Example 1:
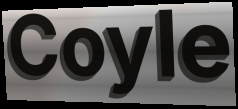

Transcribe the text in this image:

Coyle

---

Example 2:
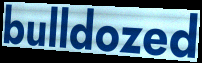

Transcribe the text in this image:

bulldozed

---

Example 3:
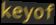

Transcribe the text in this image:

keyof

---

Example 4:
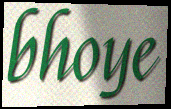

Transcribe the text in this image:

bhoye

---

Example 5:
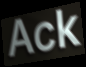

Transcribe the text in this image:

Ack